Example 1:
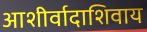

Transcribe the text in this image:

आशीर्वादाशिवाय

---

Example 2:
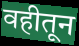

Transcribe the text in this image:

वहीतून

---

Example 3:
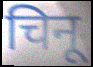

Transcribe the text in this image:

चिनू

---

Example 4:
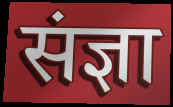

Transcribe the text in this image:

संज्ञा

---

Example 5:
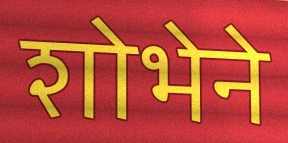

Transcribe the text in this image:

शोभेने